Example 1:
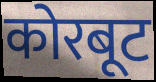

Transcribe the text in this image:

कोरबूट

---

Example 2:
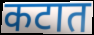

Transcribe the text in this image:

कटात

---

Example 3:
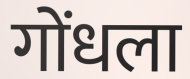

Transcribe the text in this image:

गोंधला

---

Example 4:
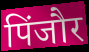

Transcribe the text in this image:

पिंजौर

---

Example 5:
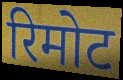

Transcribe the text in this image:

रिमोट